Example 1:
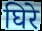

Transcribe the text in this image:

घिरे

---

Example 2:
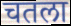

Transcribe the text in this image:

चतला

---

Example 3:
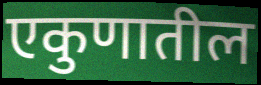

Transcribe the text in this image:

एकुणातील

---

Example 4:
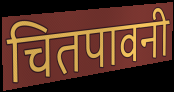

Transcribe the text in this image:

चितपावनी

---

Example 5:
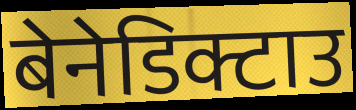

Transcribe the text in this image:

बेनेडिक्टाउ